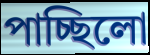
পাচ্ছিলো